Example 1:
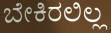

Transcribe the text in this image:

ಬೇಕಿರಲಿಲ್ಲ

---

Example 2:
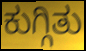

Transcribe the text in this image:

ಕುಗ್ಗಿತು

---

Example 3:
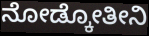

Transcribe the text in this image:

ನೋಡ್ಕೋತೀನಿ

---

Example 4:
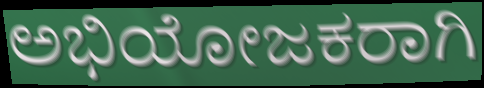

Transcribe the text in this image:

ಅಭಿಯೋಜಕರಾಗಿ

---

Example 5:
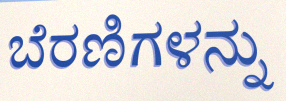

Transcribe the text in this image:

ಬೆರಣಿಗಳನ್ನು